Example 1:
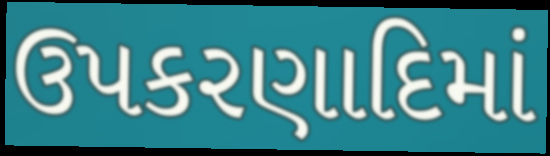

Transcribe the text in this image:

ઉપકરણાદિમાં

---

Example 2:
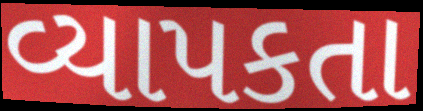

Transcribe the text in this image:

વ્યાપકતા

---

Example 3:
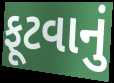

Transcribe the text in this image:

ફૂટવાનું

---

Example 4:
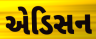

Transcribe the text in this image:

એડિસન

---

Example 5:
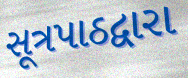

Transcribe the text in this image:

સૂત્રપાઠદ્વારા